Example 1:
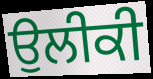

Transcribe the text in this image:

ਉਲੀਕੀ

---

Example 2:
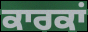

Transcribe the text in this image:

ਕਾਰਕਾਂ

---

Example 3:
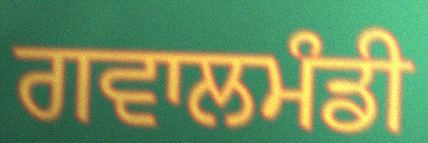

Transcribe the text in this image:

ਗਵਾਲਮੰਡੀ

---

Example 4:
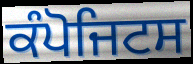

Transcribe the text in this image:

ਕੰਪੋਜਿਟਸ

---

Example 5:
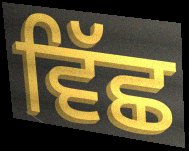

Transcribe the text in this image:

ਵਿੱਛ